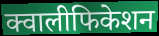
क्वालीफिकेशन